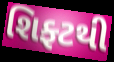
શિફ્ટથી